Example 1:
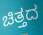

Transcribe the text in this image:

ಚಿತ್ತದ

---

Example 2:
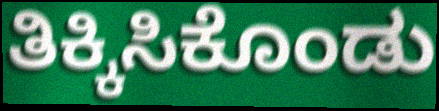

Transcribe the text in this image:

ತಿಕ್ಕಿಸಿಕೊಂಡು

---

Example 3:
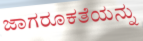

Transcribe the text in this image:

ಜಾಗರೂಕತೆಯನ್ನು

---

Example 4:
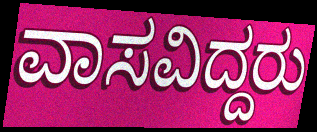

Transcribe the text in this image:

ವಾಸವಿದ್ದರು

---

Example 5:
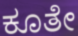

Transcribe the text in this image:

ಕೂತೇ